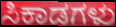
ಸಿಕಾಡಗಳು